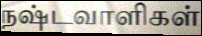
நஷ்டவாளிகள்